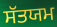
ਸੱਤਯਮ